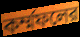
কর্ম্মফলের